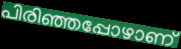
പിരിഞ്ഞപ്പോഴാണ്